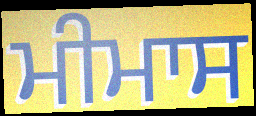
ਮੀਮਾਸ